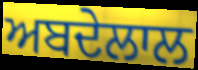
ਅਬਦੇਲਾਲ